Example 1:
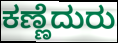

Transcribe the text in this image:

ಕಣ್ಣೆದುರು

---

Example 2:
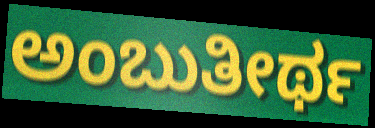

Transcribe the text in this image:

ಅಂಬುತೀರ್ಥ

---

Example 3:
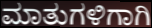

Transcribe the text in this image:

ಮಾತುಗಳಿಗಾಗಿ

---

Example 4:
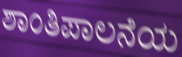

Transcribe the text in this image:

ಶಾಂತಿಪಾಲನೆಯ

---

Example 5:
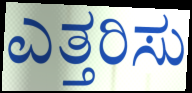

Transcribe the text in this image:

ಎತ್ತರಿಸು